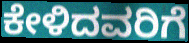
ಕೇಳಿದವರಿಗೆ